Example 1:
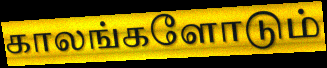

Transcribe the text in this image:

காலங்களோடும்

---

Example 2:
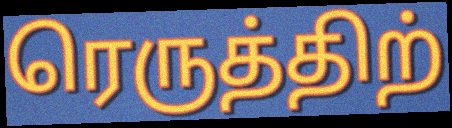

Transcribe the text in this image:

ரெருத்திற்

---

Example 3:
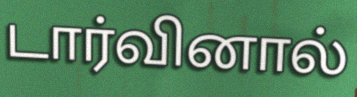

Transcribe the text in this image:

டார்வினால்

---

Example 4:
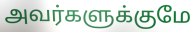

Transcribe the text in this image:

அவர்களுக்குமே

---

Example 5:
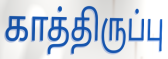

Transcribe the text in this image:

காத்திருப்பு